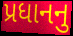
પ્રધાનનુ